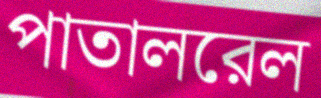
পাতালরেল